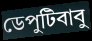
ডেপুটিবাবু